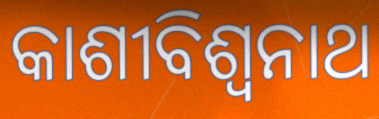
କାଶୀବିଶ୍ୱନାଥ